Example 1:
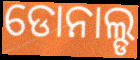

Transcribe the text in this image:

ଡୋନାଲ୍ଡ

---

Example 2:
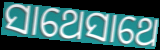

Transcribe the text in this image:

ସାଥେସାଥେ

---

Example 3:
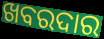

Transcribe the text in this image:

ଖବରଦାର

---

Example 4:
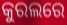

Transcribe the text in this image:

କୁରଲରେ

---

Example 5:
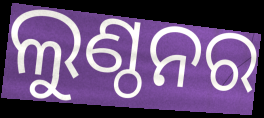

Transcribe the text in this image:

ଲୁଣ୍ଠନର